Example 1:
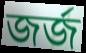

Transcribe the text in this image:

জৰ্জ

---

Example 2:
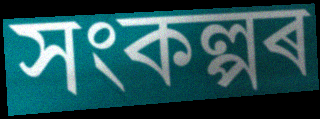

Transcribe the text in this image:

সংকল্পৰ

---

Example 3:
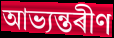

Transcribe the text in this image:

আভ্যন্তৰীণ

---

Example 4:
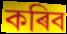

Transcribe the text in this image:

কৰিব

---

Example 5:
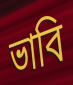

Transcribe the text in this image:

ভাবি